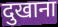
दुखाना